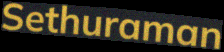
Sethuraman